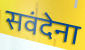
सवंदेना